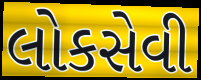
લોકસેવી